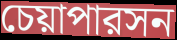
চেয়াপারসন